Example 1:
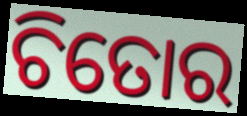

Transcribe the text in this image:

ଚିତୋର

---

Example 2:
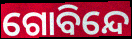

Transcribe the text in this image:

ଗୋବିନ୍ଦେ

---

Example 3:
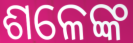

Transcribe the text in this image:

ଶଳେଙ୍କ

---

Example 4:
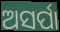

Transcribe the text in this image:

ଅସର୍ପା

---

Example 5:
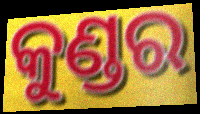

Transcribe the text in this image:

କୁଣ୍ଡର